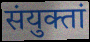
संयुक्तां